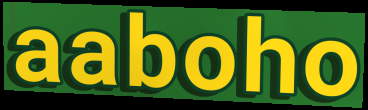
aaboho